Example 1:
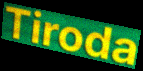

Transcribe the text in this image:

Tiroda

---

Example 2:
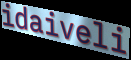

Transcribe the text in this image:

idaiveli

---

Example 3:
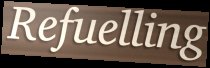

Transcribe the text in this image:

Refuelling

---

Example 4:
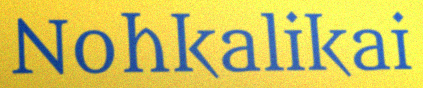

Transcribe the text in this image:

Nohkalikai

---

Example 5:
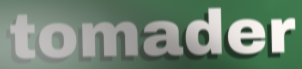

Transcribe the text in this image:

tomader